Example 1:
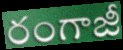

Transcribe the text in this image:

రంగాజీ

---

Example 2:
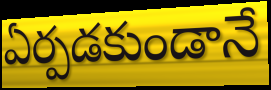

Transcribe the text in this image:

ఏర్పడకుండానే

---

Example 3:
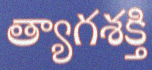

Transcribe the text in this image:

త్యాగశక్తి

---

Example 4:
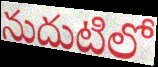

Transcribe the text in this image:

నుదుటిలో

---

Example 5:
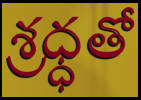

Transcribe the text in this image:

శ్రధ్ధతో